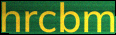
hrcbm